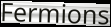
Fermions